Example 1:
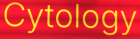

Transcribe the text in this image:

Cytology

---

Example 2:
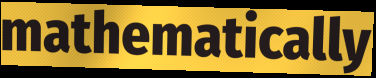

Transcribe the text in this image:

mathematically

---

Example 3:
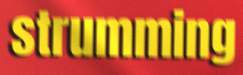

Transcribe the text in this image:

strumming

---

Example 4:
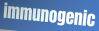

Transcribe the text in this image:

immunogenic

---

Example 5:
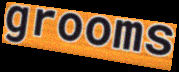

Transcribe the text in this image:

grooms